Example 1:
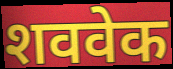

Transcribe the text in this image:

शववेक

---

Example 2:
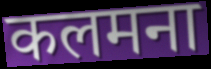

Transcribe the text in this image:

कलमना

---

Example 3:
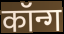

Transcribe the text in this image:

कॉन्ग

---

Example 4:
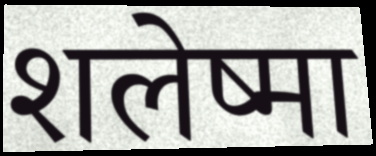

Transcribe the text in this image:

शलेष्मा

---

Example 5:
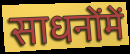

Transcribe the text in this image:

साधनोंमें